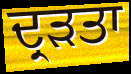
ਦ੍ਰੜਤਾ